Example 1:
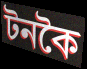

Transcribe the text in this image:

টনকৈ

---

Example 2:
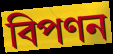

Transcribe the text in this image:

বিপণন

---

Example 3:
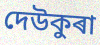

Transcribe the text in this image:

দেউকুৰা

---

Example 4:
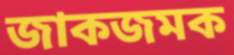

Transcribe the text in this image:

জাকজমক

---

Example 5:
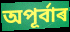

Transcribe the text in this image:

অপূৰ্বাৰ